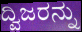
ದ್ವಿಜರನ್ನು